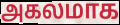
அகலமாக